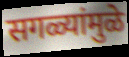
सगळ्यांमुळे